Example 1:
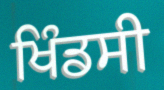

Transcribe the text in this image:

ਖਿੰਡਸੀ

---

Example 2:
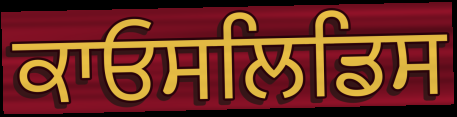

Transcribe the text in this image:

ਕਾਓਸਲਿਡਿਸ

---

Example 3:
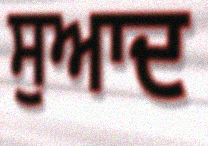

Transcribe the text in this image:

ਸੁਆਦ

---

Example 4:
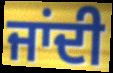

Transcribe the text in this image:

ਜਾਂਦੀ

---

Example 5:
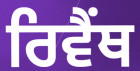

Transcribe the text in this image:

ਰਿਵੈਂਥ